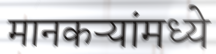
मानकऱ्यांमध्ये